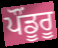
ਪੌਂਡੂਰੂ